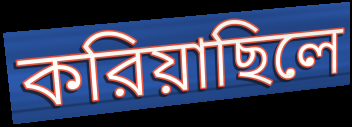
করিয়াছিলে